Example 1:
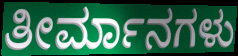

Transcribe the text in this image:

ತೀರ್ಮಾನಗಳು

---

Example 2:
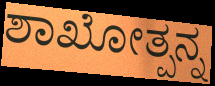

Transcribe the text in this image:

ಶಾಖೋತ್ಪನ್ನ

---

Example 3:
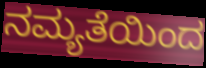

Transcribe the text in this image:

ನಮ್ಯತೆಯಿಂದ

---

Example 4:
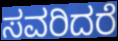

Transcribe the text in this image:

ಸವರಿದರೆ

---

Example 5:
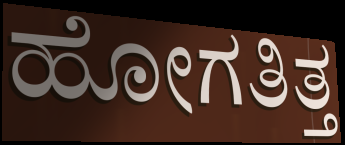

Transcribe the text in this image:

ಹೋಗತಿತ್ತ